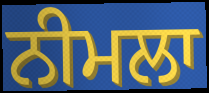
ਨੀਮਲਾ